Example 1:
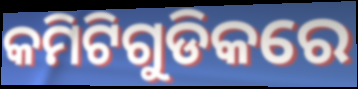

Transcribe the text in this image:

କମିଟିଗୁଡିକରେ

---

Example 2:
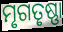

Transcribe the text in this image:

ମୃଗତୃଷ୍ଣା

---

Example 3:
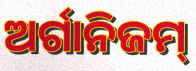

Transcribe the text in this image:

ଅର୍ଗାନିଜମ୍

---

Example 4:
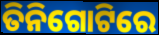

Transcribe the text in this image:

ତିନିଗୋଟିରେ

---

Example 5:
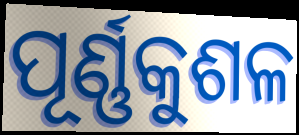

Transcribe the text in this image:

ପୂର୍ଣ୍ଣକୁଶଳ